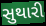
સુથારી